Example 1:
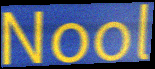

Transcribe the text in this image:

Nool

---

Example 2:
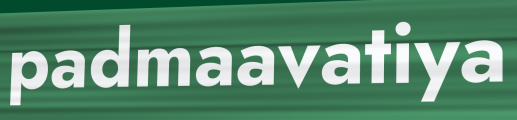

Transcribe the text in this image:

padmaavatiya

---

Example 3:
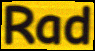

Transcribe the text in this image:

Rad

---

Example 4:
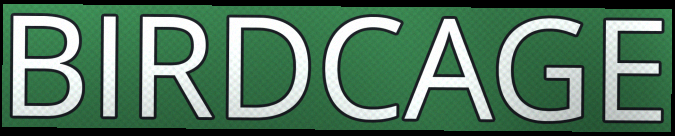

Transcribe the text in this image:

BIRDCAGE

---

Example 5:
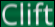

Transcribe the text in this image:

Clift